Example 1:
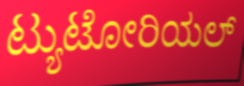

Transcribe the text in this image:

ಟ್ಯುಟೋರಿಯಲ್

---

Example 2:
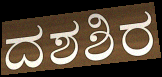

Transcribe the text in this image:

ದಶಶಿರ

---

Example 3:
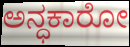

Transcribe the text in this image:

ಅನ್ಧಕಾರೋ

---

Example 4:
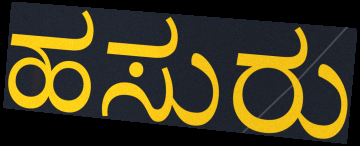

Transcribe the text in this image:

ಹಸುರು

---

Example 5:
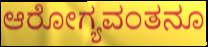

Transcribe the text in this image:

ಆರೋಗ್ಯವಂತನೂ